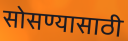
सोसण्यासाठी